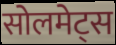
सोलमेट्स